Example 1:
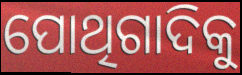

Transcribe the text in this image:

ପୋଥିଗାଦିକୁ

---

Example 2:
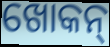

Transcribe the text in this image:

ଖୋକନ୍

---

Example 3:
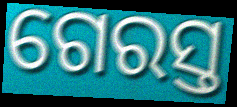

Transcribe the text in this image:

ଗେରସ୍ତ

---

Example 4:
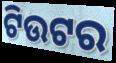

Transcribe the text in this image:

ଟିଉଟର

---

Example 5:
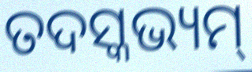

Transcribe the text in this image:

ତଦସ୍କଭ୍ୟମ୍